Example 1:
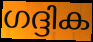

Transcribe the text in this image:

ഗദ്ദിക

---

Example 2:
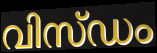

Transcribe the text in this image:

വിസ്ഡം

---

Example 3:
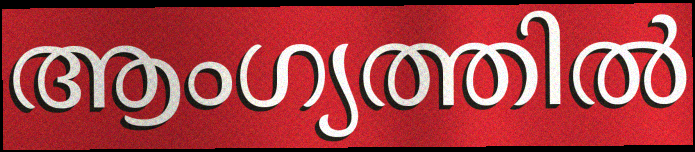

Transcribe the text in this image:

ആംഗ്യത്തിൽ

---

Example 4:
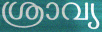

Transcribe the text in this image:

ശ്രാവ്യ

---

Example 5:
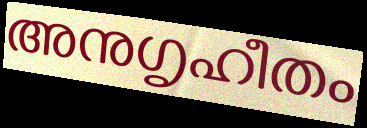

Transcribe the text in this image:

അനുഗൃഹീതം